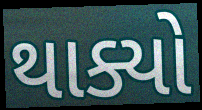
થાક્યો